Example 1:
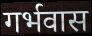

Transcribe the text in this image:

गर्भवास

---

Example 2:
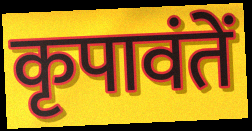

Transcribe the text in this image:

कृपावंतें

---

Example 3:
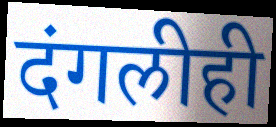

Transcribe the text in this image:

दंगलीही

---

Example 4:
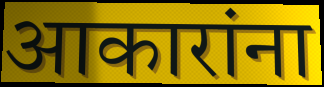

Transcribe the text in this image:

आकारांना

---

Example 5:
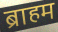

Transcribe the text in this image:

ब्राहम